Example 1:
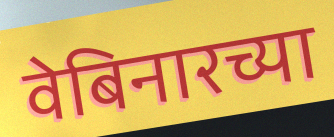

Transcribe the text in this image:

वेबिनारच्या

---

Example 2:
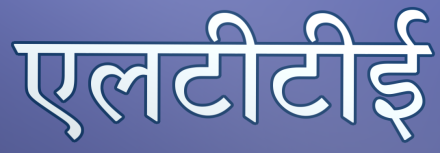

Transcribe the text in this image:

एलटीटीई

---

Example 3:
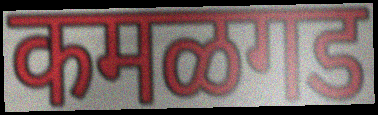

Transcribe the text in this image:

कमळगड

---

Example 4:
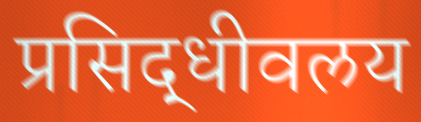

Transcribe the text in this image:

प्रसिद्धीवलय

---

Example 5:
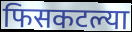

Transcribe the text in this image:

फिसकटल्या